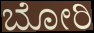
ಬೋರಿ